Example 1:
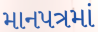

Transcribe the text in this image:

માનપત્રમાં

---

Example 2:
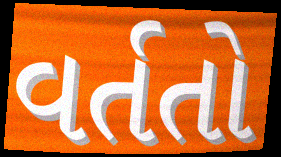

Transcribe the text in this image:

વર્તતો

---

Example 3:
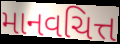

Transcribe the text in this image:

માનવચિત્ત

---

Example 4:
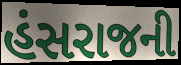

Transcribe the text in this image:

હંસરાજની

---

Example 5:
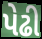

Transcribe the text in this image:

પેઢી